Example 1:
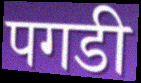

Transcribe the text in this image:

पगडी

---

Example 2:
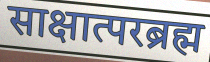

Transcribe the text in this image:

साक्षात्परब्रह्म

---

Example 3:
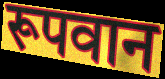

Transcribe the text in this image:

रूपवान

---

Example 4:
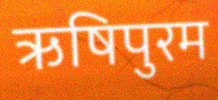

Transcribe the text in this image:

ऋषिपुरम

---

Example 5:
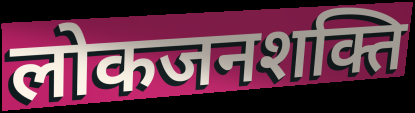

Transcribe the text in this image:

लोकजनशक्ति